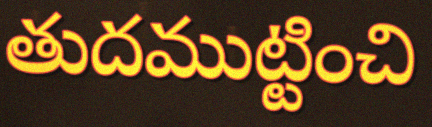
తుదముట్టించి